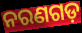
ନରଣଗଡ଼